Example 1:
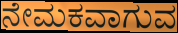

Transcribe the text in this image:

ನೇಮಕವಾಗುವ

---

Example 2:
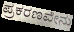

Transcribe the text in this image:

ಪ್ರಕರಣವೇನು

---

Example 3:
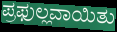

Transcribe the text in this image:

ಪ್ರಫುಲ್ಲವಾಯಿತು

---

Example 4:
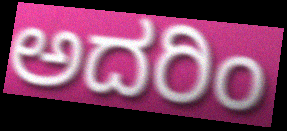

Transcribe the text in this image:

ಅದರಿಂ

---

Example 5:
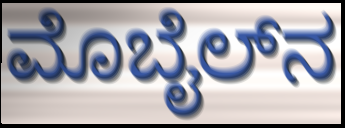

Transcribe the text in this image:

ಮೊಬೈಲ್‌ನ